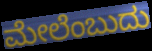
ಮೇಲೆಂಬುದು